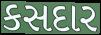
કસદાર